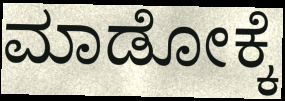
ಮಾಡೋಕ್ಕೆ